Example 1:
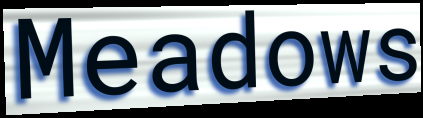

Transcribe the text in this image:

Meadows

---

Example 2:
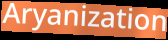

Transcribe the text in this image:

Aryanization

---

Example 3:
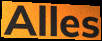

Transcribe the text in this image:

Alles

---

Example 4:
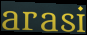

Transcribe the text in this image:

arasi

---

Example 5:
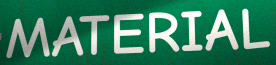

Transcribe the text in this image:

MATERIAL